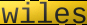
wiles